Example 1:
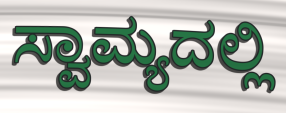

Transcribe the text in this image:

ಸ್ವಾಮ್ಯದಲ್ಲಿ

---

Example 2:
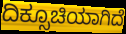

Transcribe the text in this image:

ದಿಕ್ಸೂಚಿಯಾಗಿದೆ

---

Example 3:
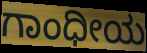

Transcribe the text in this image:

ಗಾಂಧೀಯ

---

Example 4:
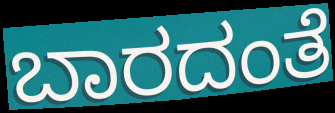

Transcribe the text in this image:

ಬಾರದಂತೆ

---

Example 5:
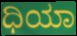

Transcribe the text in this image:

ಧಿಯಾ